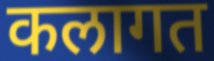
कलागत